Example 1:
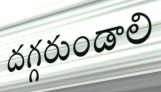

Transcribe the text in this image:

దగ్గరుండాలి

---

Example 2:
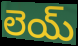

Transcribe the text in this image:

లెయ్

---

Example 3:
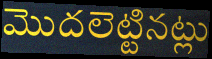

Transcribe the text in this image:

మొదలెట్టినట్లు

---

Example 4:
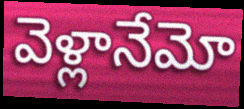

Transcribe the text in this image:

వెళ్లానేమో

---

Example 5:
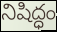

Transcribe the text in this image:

నిషిద్ధం